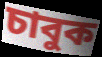
চাবুক